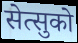
सेत्सुको